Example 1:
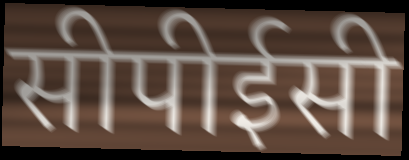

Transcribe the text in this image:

सीपीईसी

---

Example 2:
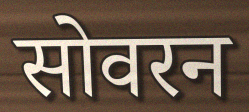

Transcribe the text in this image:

सोवरन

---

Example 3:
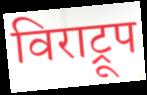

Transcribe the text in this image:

विराट्रूप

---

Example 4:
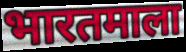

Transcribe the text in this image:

भारतमाला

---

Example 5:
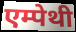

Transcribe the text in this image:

एम्पेथी